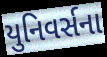
યુનિવર્સના